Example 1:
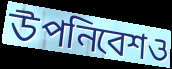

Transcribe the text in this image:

উপনিবেশও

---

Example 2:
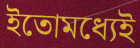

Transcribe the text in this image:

ইতোমধ্যেই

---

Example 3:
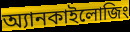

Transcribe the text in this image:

অ্যানকাইলোজিং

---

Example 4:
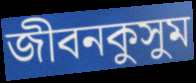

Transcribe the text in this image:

জীবনকুসুম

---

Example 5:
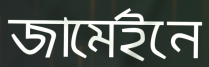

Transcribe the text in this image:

জার্মেইনে